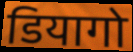
डियागो